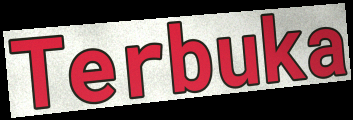
Terbuka